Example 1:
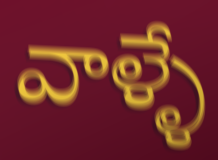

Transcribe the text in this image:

వాళ్ళే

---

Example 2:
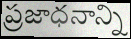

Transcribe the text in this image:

ప్రజాధనాన్ని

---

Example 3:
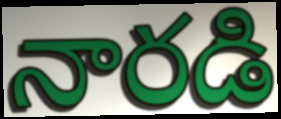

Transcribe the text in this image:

నారడి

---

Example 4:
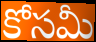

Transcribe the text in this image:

కోసమీ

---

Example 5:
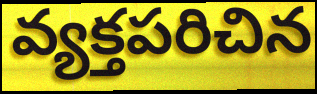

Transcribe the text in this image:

వ్యక్తపరిచిన